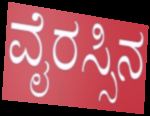
ವೈರಸ್ಸಿನ